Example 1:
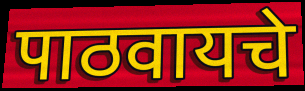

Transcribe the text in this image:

पाठवायचे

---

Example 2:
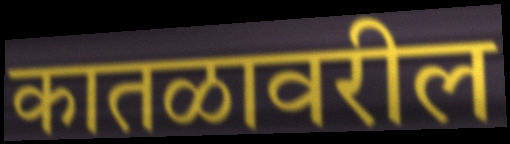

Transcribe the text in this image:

कातळावरील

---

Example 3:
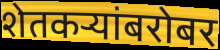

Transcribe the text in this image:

शेतकर्‍यांबरोबर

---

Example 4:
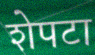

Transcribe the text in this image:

शेपटा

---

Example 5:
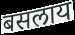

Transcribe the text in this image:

बसलाय